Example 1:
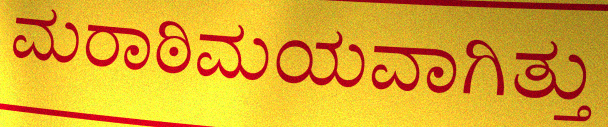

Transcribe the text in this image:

ಮರಾಠಿಮಯವಾಗಿತ್ತು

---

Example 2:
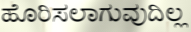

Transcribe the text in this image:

ಹೊರಿಸಲಾಗುವುದಿಲ್ಲ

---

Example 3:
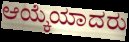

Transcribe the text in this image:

ಆಯ್ಕೆಯಾದರು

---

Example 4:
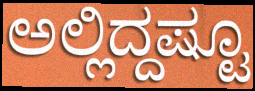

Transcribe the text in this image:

ಅಲ್ಲಿದ್ದಷ್ಟೂ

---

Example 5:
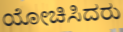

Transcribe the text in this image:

ಯೋಚಿಸಿದರು